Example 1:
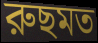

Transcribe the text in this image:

রুছমত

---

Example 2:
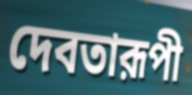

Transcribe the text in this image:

দেবতারূপী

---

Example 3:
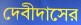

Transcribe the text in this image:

দেবীদাসের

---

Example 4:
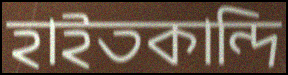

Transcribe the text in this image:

হাইতকান্দি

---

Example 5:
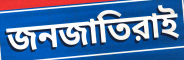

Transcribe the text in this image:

জনজাতিরাই